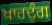
ਖਾਰਦੁੰਗ